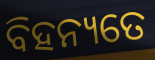
ବିହନ୍ୟତେ